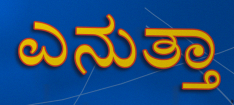
ಎನುತ್ತಾ